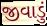
જીવાડું